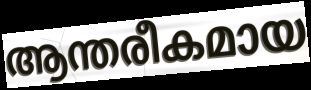
ആന്തരീകമായ